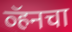
व्हॅनचा